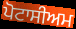
ਪੋਟਾਸੀਅਮ